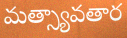
మత్స్యావతార